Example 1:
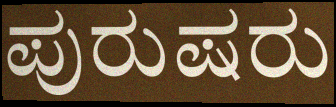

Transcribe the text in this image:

ಪುರುಷರು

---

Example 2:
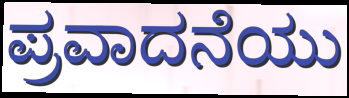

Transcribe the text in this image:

ಪ್ರವಾದನೆಯು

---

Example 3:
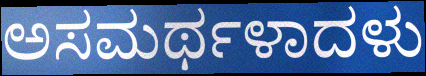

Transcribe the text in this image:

ಅಸಮರ್ಥಳಾದಳು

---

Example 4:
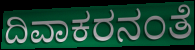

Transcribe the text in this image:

ದಿವಾಕರನಂತೆ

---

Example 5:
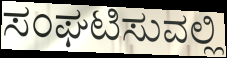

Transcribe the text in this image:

ಸಂಘಟಿಸುವಲ್ಲಿ